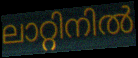
ലാറ്റിനിൽ